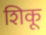
शिकू